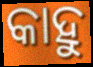
କାହୁ